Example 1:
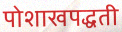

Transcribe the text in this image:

पोशाखपद्धती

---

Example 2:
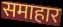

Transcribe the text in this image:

समाहार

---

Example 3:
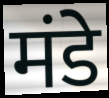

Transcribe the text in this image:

मंडे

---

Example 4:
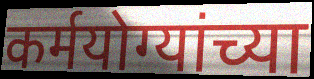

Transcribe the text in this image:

कर्मयोग्यांच्या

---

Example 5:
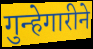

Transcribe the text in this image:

गुन्हेगारीने